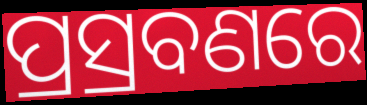
ପ୍ରସ୍ରବଣରେ